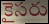
కైసరు